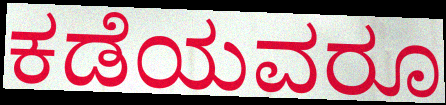
ಕಡೆಯವರೂ